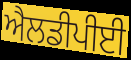
ਐਲਡੀਪੀਈ